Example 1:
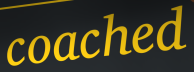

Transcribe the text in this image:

coached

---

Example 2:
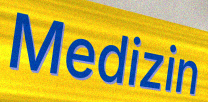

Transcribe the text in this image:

Medizin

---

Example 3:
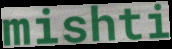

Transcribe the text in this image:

mishti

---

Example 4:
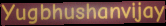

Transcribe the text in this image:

Yugbhushanvijay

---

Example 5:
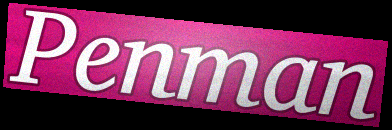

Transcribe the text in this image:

Penman